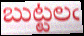
బుట్టలఁ